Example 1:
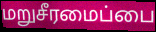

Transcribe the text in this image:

மறுசீரமைப்பை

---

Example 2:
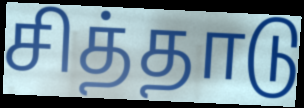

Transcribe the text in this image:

சித்தாடு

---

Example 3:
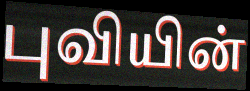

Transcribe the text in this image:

புவியின்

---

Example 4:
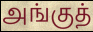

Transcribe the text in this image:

அங்குத்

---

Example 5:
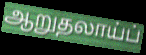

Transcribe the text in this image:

ஆறுதலாய்ப்